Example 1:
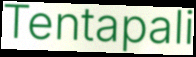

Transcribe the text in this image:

Tentapali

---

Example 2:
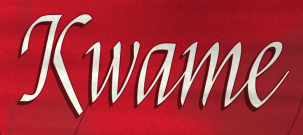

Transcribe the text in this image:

Kwame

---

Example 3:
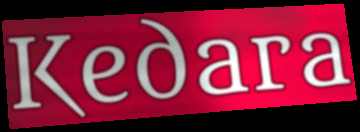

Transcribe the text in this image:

Kedara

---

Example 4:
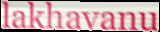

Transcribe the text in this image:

lakhavanu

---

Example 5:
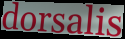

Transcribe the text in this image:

dorsalis